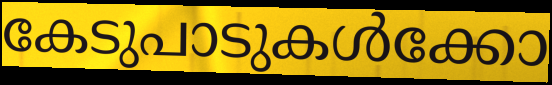
കേടുപാടുകൾക്കോ